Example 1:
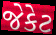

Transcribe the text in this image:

જેકેટ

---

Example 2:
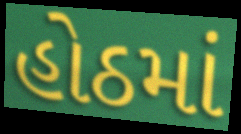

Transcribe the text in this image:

હોઠમાં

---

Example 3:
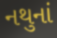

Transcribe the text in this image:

નથુનાં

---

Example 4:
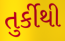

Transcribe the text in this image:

તુર્કીથી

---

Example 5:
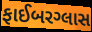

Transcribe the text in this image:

ફાઈબરગ્લાસ